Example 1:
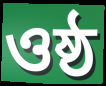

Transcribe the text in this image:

ওষ্ঠ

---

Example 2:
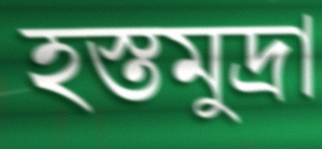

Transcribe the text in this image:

হস্তমুদ্রা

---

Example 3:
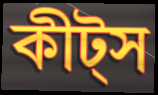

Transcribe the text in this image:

কীট্স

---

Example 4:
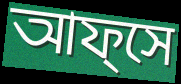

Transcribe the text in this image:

আফ্সে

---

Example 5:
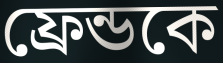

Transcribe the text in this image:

ফ্রেন্ডকে